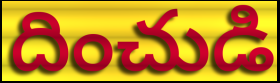
దించుడి